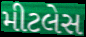
મીટલેસ